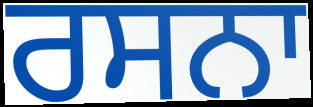
ਰਸਨਾ